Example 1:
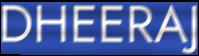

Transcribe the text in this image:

DHEERAJ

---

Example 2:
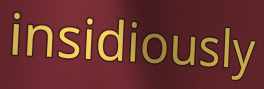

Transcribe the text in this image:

insidiously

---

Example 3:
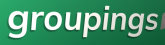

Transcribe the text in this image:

groupings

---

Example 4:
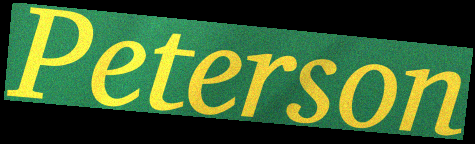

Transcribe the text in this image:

Peterson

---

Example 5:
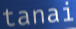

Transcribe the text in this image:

tanai